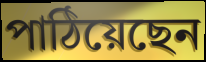
পাঠিয়েছেন